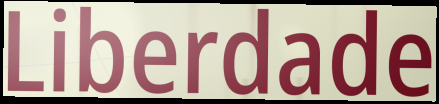
Liberdade